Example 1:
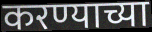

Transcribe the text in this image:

करण्याच्या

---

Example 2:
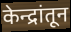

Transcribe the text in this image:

केन्द्रांतून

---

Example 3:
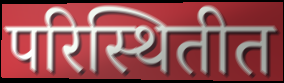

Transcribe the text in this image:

परिस्थितीत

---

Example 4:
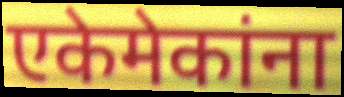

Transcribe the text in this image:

एकेमेकांना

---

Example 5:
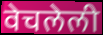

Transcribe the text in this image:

वेचलेली